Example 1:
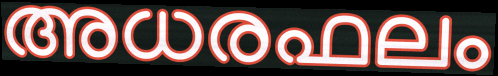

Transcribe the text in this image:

അധരഫലം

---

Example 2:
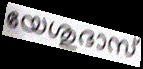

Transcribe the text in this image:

യേശുദാസ്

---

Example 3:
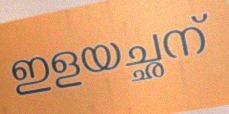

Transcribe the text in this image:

ഇളയച്ഛന്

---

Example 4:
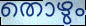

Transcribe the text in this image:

തൊഴും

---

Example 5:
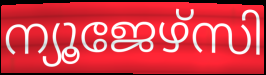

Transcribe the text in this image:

ന്യൂജേഴ്സി